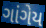
ગાંગેય